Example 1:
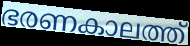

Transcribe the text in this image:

ഭരണകാലത്ത്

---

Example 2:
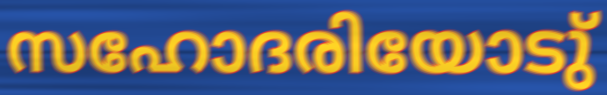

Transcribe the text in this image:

സഹോദരിയോടു്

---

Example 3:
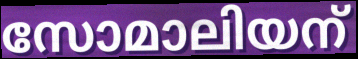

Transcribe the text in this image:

സോമാലിയന്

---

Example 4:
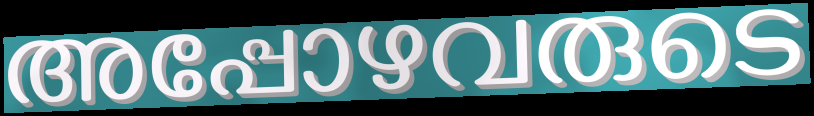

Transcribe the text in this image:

അപ്പോഴവരുടെ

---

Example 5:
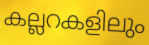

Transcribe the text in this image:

കല്ലറകളിലും